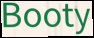
Booty